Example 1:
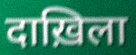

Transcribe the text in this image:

दाख़िला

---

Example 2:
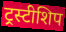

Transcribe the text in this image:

ट्रस्टीशिप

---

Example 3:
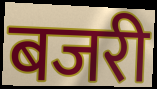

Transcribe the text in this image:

बजरी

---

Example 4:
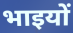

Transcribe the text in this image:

भाइयों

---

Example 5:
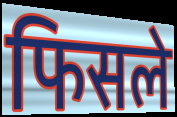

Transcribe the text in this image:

फिसले